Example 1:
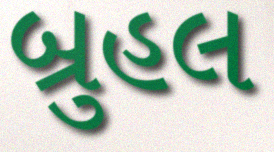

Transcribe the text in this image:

બ્રુહલ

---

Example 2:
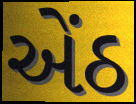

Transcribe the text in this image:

એંઠ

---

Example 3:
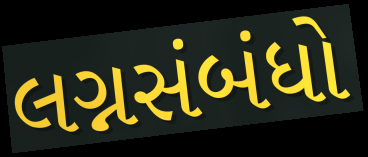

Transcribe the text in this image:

લગ્નસંબંધો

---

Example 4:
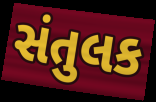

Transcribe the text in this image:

સંતુલક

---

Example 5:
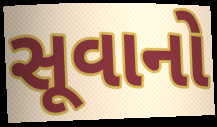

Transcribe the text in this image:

સૂવાનો